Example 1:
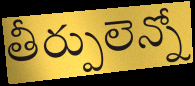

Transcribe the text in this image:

తీర్పులెన్నో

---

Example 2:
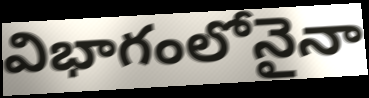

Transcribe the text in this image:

విభాగంలోనైనా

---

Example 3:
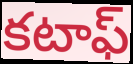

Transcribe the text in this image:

కటాఫ్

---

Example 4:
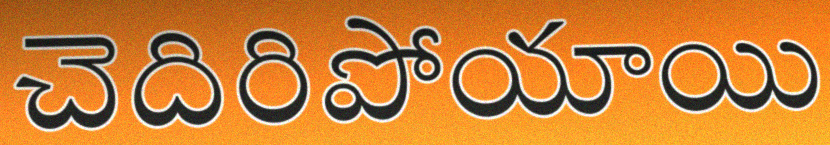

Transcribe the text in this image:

చెదిరిపోయాయి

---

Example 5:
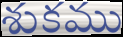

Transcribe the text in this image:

శుకము